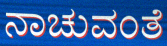
ನಾಚುವಂತೆ